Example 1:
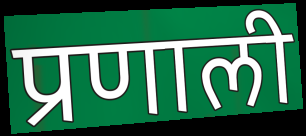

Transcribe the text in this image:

प्रणाली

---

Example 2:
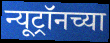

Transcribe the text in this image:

न्यूट्रॉनच्या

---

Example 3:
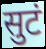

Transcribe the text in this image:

सुटं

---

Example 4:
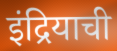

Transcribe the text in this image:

इंद्रियाची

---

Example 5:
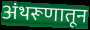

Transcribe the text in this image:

अंथरूणातून